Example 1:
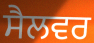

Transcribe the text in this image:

ਸੈਲਵਰ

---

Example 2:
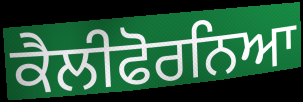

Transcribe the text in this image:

ਕੈਲੀਫੋਰਨਿਆ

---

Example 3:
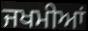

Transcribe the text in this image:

ਜਖਮੀਆਂ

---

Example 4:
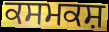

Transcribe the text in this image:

ਕਸਮਕਸ਼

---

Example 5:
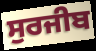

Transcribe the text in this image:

ਸੁਰਜੀਬ